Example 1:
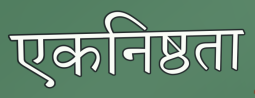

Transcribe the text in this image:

एकनिष्ठता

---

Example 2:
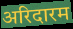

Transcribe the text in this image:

अरिदारम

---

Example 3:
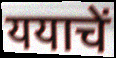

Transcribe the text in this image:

ययाचें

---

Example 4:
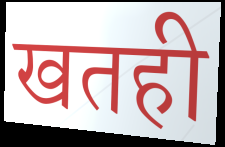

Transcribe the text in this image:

खतही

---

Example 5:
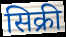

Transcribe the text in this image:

सिक्री